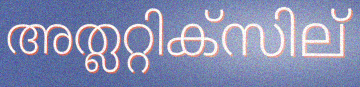
അത്ലറ്റിക്സില്